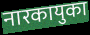
नारकायुका